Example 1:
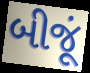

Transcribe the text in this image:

બીજૂં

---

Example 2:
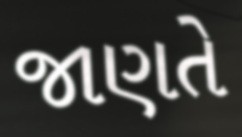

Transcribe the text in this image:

જાણતે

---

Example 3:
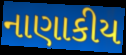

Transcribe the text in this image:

નાણાકીય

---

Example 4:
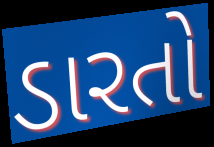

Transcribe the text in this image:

ડારતો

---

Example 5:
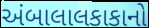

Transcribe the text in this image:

અંબાલાલકાકાનો